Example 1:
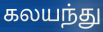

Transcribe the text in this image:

கலயந்து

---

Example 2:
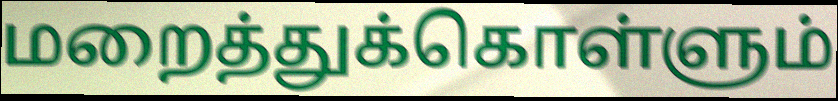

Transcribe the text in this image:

மறைத்துக்கொள்ளும்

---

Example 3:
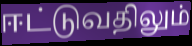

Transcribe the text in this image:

ஈட்டுவதிலும்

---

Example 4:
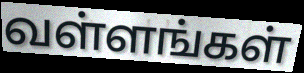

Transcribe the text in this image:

வள்ளங்கள்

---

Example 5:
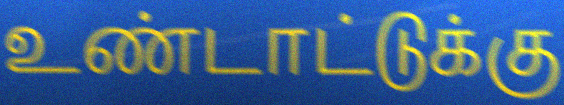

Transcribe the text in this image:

உண்டாட்டுக்கு